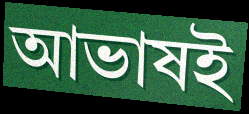
আভাষই